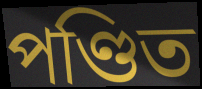
পণ্ডিত